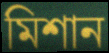
মিশান